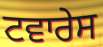
ਟਵਾਰੇਸ